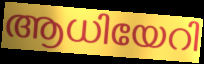
ആധിയേറി